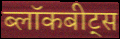
ब्लॉकबीट्स